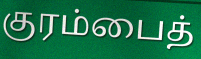
குரம்பைத்